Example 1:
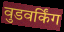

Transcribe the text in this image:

वुडवर्किंग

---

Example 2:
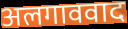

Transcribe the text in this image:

अलगाववाद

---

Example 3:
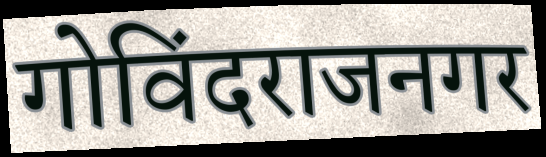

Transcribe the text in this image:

गोविंदराजनगर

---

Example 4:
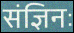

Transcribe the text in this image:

संज्ञिनः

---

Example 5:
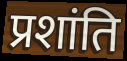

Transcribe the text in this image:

प्रशांति